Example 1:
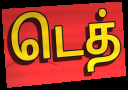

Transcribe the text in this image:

டெத்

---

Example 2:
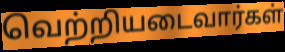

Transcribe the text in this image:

வெற்றியடைவார்கள்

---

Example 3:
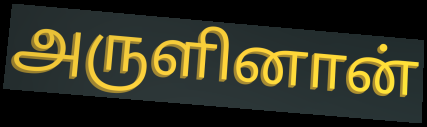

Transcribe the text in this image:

அருளினான்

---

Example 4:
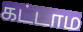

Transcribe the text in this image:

கட்டாம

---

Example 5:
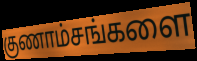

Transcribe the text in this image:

குணாம்சங்களை